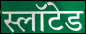
स्लॉटेड